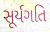
સૂર્યગતિ